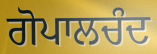
ਗੋਪਾਲਚੰਦ